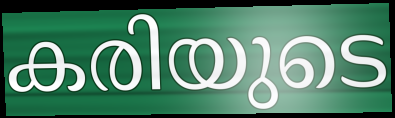
കരിയുടെ